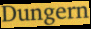
Dungern